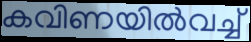
കവിണയിൽവച്ച്